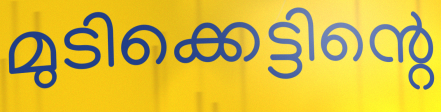
മുടിക്കെട്ടിന്റെ